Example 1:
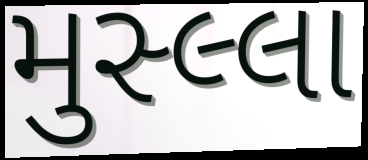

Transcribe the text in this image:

મુસ્લ્લા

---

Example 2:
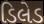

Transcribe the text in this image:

ડિલેડ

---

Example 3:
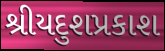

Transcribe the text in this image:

શ્રીયદુશપ્રકાશ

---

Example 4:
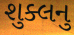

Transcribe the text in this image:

શુક્લનુ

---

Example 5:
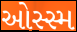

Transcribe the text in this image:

ઓસ્સ્મ